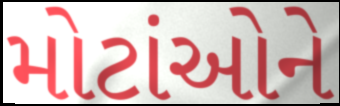
મોટાંઓને